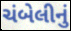
ચંબેલીનું